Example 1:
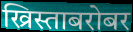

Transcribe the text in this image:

ख्रिस्ताबरोबर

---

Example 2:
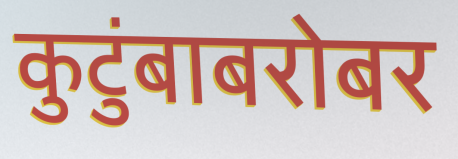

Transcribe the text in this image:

कुटुंबाबरोबर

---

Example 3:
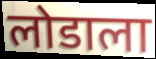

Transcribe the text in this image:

लोडाला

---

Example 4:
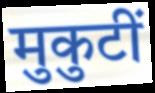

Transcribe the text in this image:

मुकुटीं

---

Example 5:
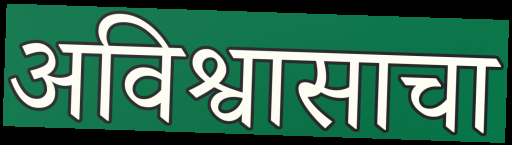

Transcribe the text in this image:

अविश्वासाचा